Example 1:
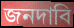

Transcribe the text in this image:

জনদাবি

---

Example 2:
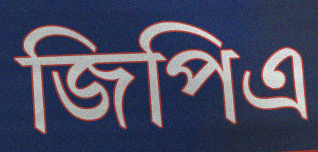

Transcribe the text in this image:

জিপিএ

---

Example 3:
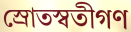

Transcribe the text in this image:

স্রোতস্বতীগণ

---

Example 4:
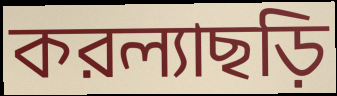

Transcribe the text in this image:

করল্যাছড়ি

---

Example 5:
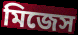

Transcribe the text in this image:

মিজেস